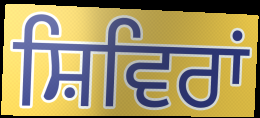
ਸ਼ਿਵਿਰਾਂ